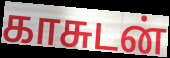
காசுடன்